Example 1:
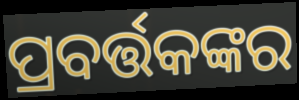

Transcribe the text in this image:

ପ୍ରବର୍ତ୍ତକଙ୍କର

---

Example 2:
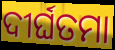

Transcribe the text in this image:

ଦୀର୍ଘତମା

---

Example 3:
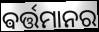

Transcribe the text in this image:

ଵର୍ତ୍ତମାନର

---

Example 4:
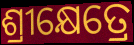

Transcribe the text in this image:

ଶ୍ରୀକ୍ଷେତ୍ରେ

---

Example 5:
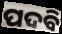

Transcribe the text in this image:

ପଦବି